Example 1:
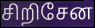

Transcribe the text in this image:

சிறிசேன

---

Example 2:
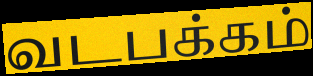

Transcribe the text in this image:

வடபக்கம்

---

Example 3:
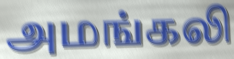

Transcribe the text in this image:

அமங்கலி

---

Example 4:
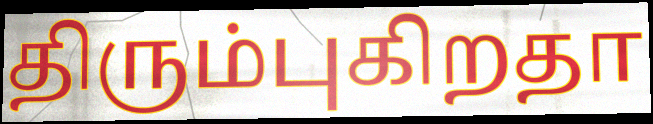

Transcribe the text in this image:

திரும்புகிறதா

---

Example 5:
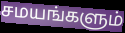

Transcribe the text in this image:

சமயங்களும்